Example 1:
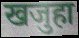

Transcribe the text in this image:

खजुहा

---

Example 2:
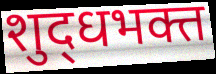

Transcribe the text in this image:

शुद्धभक्त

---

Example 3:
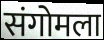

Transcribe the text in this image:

संगोमला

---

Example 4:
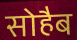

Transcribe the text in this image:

सोहैब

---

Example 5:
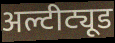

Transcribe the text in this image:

अल्टीट्यूड